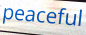
peaceful